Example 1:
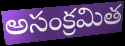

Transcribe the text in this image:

అసంక్రమిత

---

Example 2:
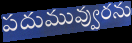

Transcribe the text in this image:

పదుమువ్వురను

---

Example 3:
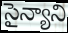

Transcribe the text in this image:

సైన్యాని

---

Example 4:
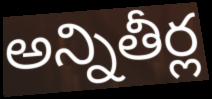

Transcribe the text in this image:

అన్నితీర్ల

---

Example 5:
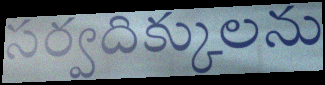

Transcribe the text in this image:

సర్వదిక్కులను